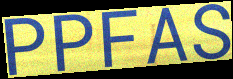
PPFAS